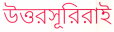
উত্তরসূরিরাই